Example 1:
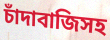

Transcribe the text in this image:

চাঁদাবাজিসহ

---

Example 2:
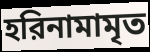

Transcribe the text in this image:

হরিনামামৃত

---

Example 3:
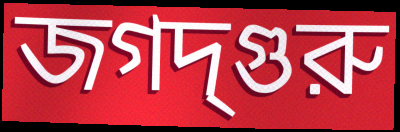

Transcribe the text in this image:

জগদ্‌গুরু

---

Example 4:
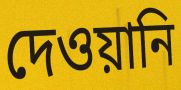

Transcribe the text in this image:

দেওয়ানি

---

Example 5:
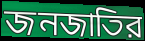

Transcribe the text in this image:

জনজাতির